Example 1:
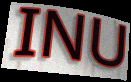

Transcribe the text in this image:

INU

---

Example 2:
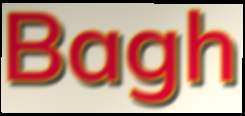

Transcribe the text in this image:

Bagh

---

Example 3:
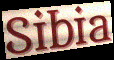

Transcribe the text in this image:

Sibia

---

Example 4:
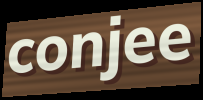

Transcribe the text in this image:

conjee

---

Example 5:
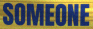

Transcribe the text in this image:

SOMEONE